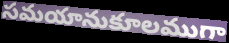
సమయానుకూలముగా